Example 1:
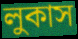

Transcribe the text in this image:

লুকাস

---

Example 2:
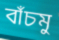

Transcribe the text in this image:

বাঁচমু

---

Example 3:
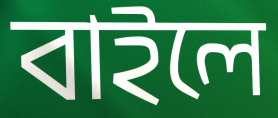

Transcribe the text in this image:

বাইলে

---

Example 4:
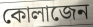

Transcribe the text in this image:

কোলাজেন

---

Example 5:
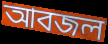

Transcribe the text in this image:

আবজল